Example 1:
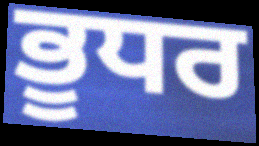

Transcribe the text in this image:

ਭੂਧਰ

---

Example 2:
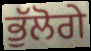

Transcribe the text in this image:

ਭੁੱਲੋਗੇ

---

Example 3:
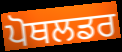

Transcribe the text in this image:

ਪੋਥਲਡਰ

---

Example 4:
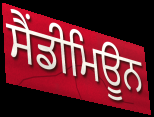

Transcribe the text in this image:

ਸੈਂਡੀਮਿਊਨ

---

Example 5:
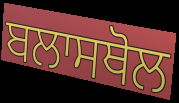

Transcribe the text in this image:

ਬਲਾਸਥੋਲ